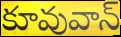
కూవువాన్